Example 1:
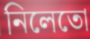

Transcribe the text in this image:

নিলেতো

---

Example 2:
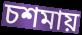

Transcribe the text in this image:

চশমায়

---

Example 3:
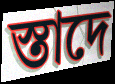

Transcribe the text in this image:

স্তাদে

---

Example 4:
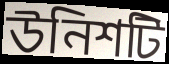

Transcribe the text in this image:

উনিশটি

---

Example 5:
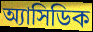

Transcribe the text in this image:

অ্যাসিডিক